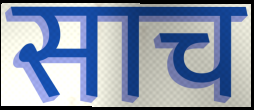
साच